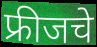
फ्रीजचे